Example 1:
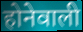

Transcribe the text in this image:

होनेवाली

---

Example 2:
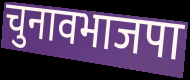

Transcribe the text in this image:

चुनावभाजपा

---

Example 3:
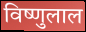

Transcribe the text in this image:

विष्णुलाल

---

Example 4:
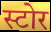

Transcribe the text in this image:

स्टोर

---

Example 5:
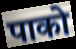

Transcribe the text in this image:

पाको